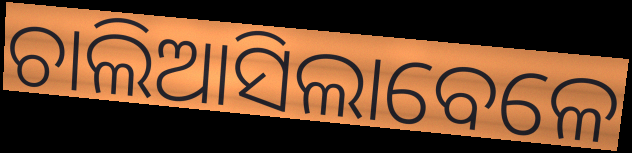
ଚାଲିଆସିଲାବେଳେ